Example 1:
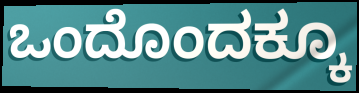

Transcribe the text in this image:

ಒಂದೊಂದಕ್ಕೂ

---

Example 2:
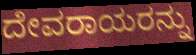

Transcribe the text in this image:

ದೇವರಾಯರನ್ನು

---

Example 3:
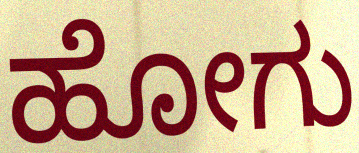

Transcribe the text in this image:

ಹೋಗು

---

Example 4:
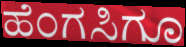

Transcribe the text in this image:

ಹೆಂಗಸಿಗೂ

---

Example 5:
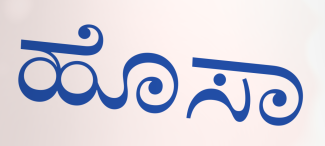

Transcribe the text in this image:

ಹೊಸಾ